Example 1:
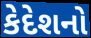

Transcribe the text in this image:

કેદેશનો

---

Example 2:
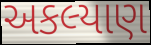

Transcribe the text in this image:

અકલ્યાણ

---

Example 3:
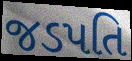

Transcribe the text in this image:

જડપતિ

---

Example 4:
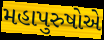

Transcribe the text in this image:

મહાપુરુષોએ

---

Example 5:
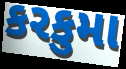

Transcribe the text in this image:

કરકુમા